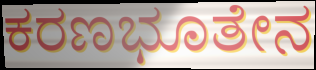
ಕರಣಭೂತೇನ